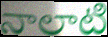
నాలాటి